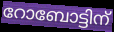
റോബോട്ടിന്